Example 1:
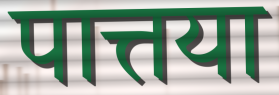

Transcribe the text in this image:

पात्तया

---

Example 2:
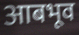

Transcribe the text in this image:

आबभूव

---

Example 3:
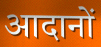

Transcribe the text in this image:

आदानों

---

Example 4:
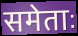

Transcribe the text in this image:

समेताः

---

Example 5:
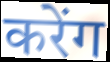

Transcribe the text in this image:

करेंग